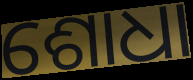
ଶୋଧା